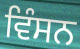
ਵਿੰਸਨ